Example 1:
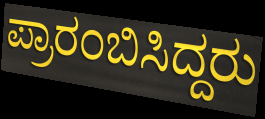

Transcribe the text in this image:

ಪ್ರಾರಂಬಿಸಿದ್ದರು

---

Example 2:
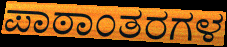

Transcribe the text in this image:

ಪಾಠಾಂತರಗಳ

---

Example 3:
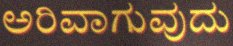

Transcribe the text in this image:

ಅರಿವಾಗುವುದು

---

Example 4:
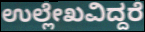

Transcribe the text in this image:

ಉಲ್ಲೇಖವಿದ್ದರೆ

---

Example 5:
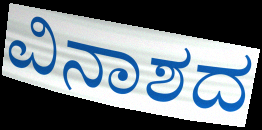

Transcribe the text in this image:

ವಿನಾಶದ